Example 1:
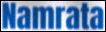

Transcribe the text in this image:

Namrata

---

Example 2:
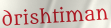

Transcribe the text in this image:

drishtiman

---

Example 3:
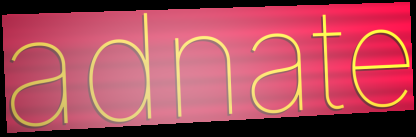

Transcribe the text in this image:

adnate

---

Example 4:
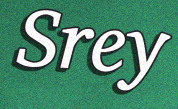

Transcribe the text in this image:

Srey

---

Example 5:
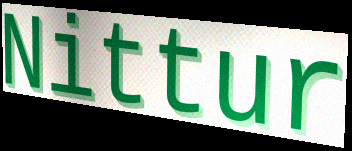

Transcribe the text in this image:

Nittur